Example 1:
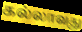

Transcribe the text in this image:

கல்லாவது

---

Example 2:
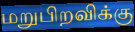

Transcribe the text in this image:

மறுபிறவிக்கு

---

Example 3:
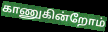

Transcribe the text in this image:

காணுகின்றோம்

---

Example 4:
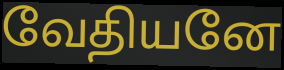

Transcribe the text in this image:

வேதியனே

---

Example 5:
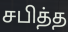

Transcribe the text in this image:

சபித்த